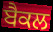
ਬੈਕਲ